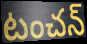
టంచన్